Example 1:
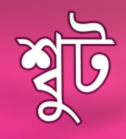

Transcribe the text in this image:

শ্বুট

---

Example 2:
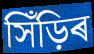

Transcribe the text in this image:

সিঁড়িৰ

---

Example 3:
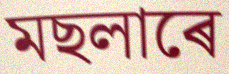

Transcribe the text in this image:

মছলাৰে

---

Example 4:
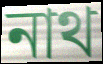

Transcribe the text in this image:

নাথ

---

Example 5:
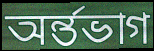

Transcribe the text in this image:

অৰ্ন্তভাগ